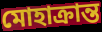
মোহাক্রান্ত